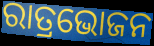
ରାତ୍ରଭୋଜନ